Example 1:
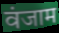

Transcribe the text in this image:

वंजाम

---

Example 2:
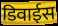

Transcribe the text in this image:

डिवाईस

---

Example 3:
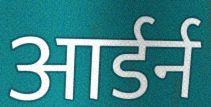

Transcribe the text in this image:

आर्डर्न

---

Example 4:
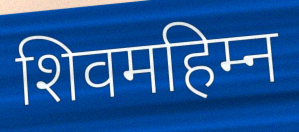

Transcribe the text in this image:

शिवमहिम्न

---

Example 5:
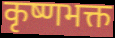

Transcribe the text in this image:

कृष्णभक्त